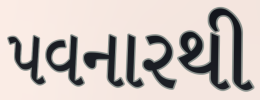
પવનારથી